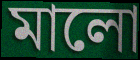
মালো